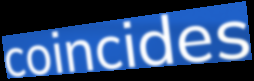
coincides